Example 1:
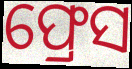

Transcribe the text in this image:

ଫ୍ରେସ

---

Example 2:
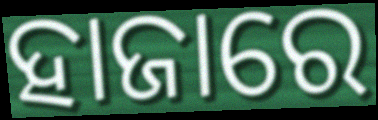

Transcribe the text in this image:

ହାଜାରେ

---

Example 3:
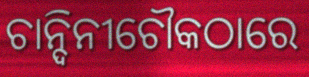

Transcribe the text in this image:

ଚାନ୍ଦିନୀଚୌକଠାରେ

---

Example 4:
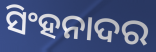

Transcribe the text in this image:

ସିଂହନାଦର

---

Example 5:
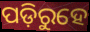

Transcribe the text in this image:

ପଡ଼ିରୁହେ